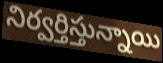
నిర్వర్తిస్తున్నాయి